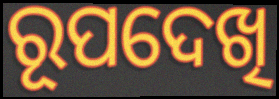
ରୂପଦେଖି